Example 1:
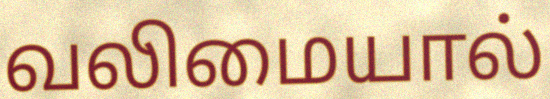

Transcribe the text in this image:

வலிமையால்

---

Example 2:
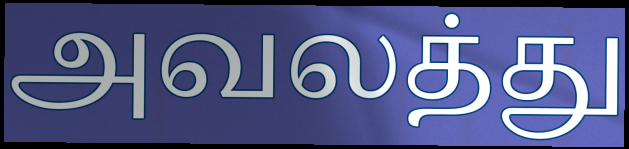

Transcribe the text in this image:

அவலத்து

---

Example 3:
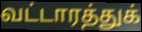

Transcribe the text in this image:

வட்டாரத்துக்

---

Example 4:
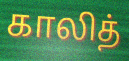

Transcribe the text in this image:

காலித்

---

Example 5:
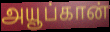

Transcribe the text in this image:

அயூப்கான்